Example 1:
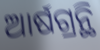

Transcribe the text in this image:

ଆର୍ଷଗ୍ରନ୍ଥି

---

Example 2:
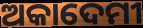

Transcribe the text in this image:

ଅକାଦେମୀ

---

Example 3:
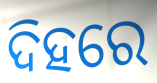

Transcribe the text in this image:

ଦିହରେ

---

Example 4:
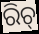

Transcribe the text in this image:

ରିଚ୍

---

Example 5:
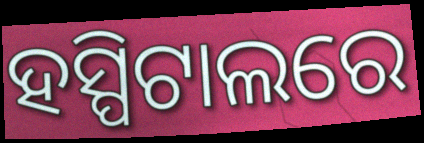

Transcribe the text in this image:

ହସ୍ପିଟାଲରେ